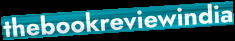
thebookreviewindia